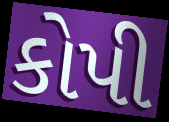
કોપી